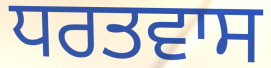
ਧਰਤਵਾਸ